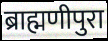
ब्राह्मणीपुरा